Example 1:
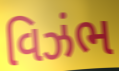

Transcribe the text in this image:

વિઝંભ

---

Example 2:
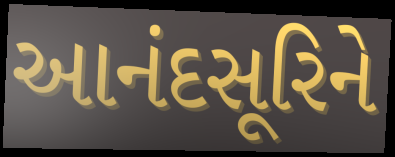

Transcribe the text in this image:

આનંદસૂરિને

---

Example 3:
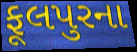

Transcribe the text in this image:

ફૂલપુરના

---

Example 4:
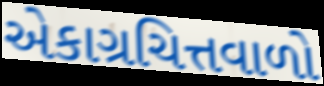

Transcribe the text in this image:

એકાગ્રચિત્તવાળો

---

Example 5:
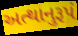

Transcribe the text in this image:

અત્થાનુરૂપં